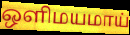
ஒளிமயமாய்